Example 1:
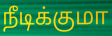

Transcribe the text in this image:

நீடிக்குமா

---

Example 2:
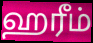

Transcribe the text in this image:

ஹரீம்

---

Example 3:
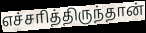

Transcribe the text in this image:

எச்சரித்திருந்தான்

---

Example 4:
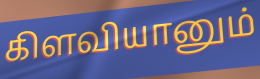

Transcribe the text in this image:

கிளவியானும்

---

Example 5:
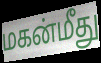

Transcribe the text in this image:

மகன்மீது